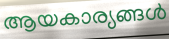
ആയകാര്യങ്ങൾ